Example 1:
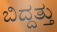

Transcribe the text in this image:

ಬಿದ್ದತ್ತು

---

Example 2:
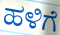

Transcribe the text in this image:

ಹಳಿಗೆ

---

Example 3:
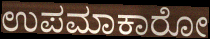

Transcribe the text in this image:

ಉಪಮಾಕಾರೋ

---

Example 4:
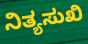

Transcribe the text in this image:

ನಿತ್ಯಸುಖಿ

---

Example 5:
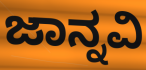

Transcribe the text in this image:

ಜಾನ್ನವಿ